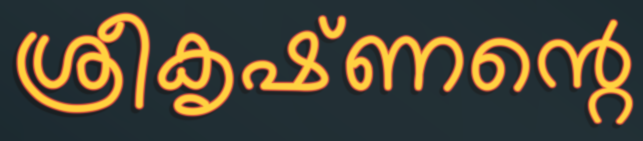
ശ്രീകൃഷ്‌ണന്റെ